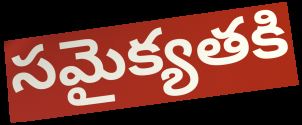
సమైక్యతకి